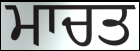
ਮਾਚਤ